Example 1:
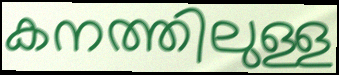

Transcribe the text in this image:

കനത്തിലുള്ള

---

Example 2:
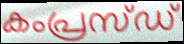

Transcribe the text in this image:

കംപ്രസ്ഡ്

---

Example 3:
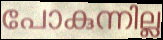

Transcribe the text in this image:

പോകുന്നില്ല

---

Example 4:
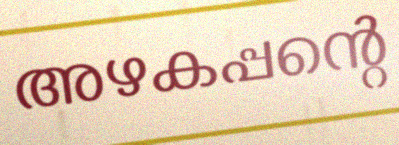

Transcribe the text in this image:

അഴകപ്പന്റെ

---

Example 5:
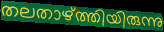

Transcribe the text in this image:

തലതാഴ്ത്തിയിരുന്നു